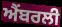
ਐਂਬਰਲੀ